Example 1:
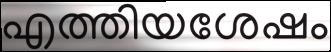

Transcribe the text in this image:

എത്തിയശേഷം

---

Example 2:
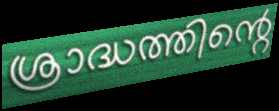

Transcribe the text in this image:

ശ്രാദ്ധത്തിന്റെ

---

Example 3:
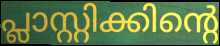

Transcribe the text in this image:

പ്ലാസ്റ്റിക്കിന്റെ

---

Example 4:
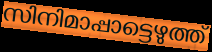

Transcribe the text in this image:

സിനിമാപ്പാട്ടെഴുത്ത്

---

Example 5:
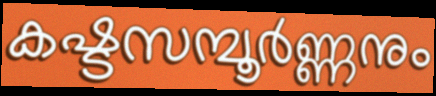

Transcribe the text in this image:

കഷ്ടസമ്പൂർണ്ണനും